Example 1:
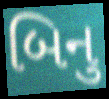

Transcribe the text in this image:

બિનુ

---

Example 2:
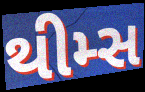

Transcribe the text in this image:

થીમ્સ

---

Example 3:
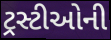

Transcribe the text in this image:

ટ્રસ્ટીઓની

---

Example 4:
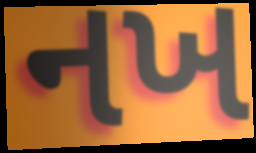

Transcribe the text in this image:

નખ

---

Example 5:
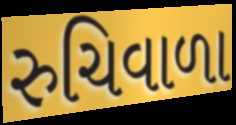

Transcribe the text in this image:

રુચિવાળા